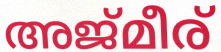
അജ്മീര്